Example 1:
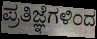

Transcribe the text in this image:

ಪ್ರತಿಜ್ಞೆಗಳಿಂದ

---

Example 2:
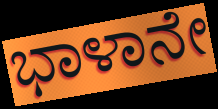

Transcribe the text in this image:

ಭಾಳಾನೇ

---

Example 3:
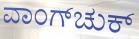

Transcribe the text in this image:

ವಾಂಗ್‌ಚುಕ್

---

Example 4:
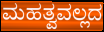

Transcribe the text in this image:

ಮಹತ್ವವಲ್ಲದ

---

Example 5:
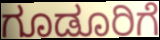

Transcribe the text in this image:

ಗೂಡೂರಿಗೆ